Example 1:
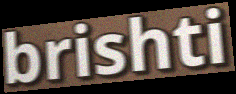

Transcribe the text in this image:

brishti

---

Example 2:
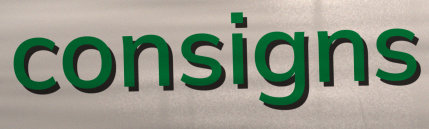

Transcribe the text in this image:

consigns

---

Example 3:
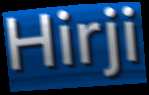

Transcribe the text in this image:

Hirji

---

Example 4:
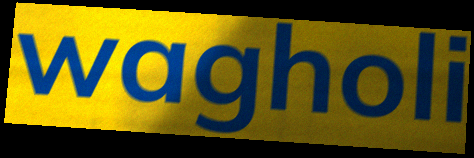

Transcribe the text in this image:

wagholi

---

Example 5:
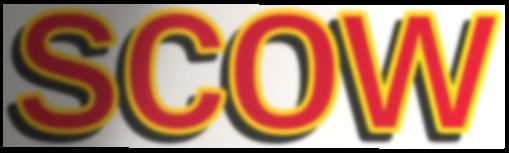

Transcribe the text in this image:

scow